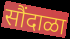
सौंदाळा